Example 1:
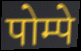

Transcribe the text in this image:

पोम्पे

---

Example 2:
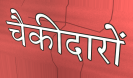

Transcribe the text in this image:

चैकीदारों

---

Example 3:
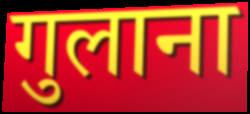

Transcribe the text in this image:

गुलाना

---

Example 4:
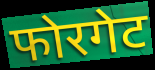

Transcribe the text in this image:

फोरगेट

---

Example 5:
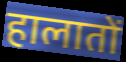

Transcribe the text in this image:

हालातों